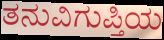
ತನುವಿಗುಪ್ತಿಯ